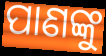
ପାଣଙ୍କୁ